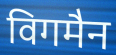
विगमैन